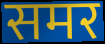
समर